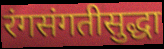
रंगसंगतीसुद्धा